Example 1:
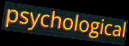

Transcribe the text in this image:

psychological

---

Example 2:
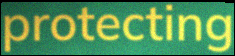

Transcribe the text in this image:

protecting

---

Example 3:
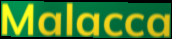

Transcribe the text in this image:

Malacca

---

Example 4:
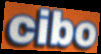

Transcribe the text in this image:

cibo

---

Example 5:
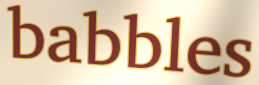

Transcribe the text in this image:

babbles